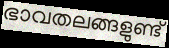
ഭാവതലങ്ങളുണ്ട്